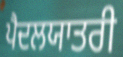
ਪੈਦਲਯਾਤਰੀ